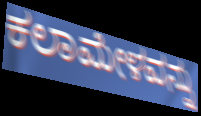
ಕಲಾಮೇಳವನ್ನು